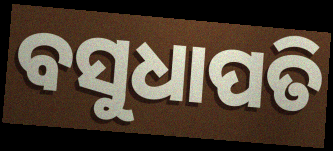
ବସୁଧାପତି